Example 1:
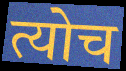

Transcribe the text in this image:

त्योच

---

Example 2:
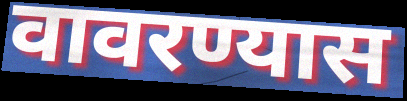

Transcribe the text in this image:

वावरण्यास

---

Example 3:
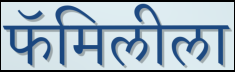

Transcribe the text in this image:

फॅमिलीला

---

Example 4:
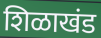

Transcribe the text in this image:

शिळाखंड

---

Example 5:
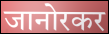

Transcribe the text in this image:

जानोरकर